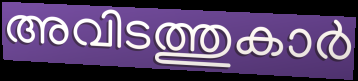
അവിടത്തുകാർ